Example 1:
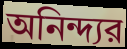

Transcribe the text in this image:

অনিন্দ্যর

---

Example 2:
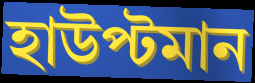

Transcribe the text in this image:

হাউপ্টমান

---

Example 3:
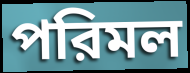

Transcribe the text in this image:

পরিমল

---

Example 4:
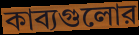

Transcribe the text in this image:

কাব্যগুলোর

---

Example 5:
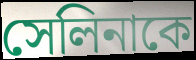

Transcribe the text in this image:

সেলিনাকে